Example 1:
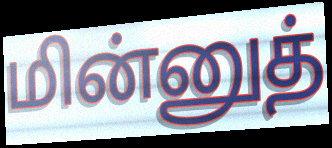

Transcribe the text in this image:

மின்னுத்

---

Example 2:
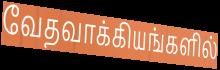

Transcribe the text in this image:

வேதவாக்கியங்களில்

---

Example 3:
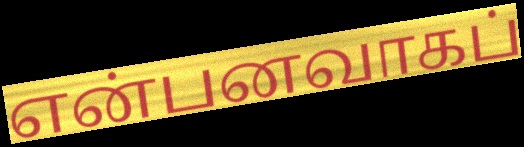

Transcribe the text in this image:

என்பனவாகப்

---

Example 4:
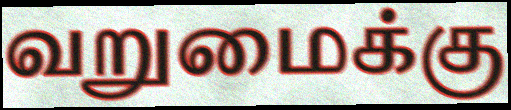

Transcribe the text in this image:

வறுமைக்கு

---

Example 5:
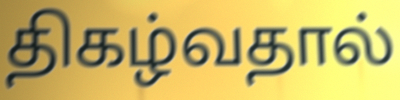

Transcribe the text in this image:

திகழ்வதால்